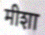
मीशा